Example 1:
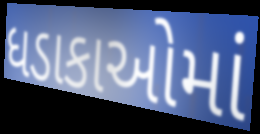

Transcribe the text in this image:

ધડાકાઓમાં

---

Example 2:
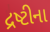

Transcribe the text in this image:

દ્રષ્ટીના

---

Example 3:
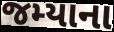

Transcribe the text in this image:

જમ્યાના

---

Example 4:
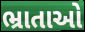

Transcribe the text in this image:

ભ્રાતાઓ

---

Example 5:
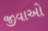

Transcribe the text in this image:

જીવાઓ